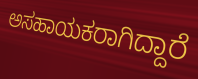
ಅಸಹಾಯಕರಾಗಿದ್ದಾರೆ